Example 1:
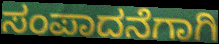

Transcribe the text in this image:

ಸಂಪಾದನೆಗಾಗಿ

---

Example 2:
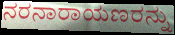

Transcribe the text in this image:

ನರನಾರಾಯಣರನ್ನು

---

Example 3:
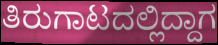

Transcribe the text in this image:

ತಿರುಗಾಟದಲ್ಲಿದ್ದಾಗ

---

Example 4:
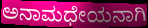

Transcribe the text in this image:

ಅನಾಮಧೇಯನಾಗಿ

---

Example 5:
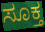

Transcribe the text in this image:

ಸೂಕ್ತ